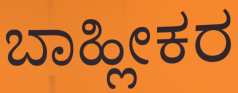
ಬಾಹ್ಲೀಕರ